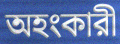
অহংকারী